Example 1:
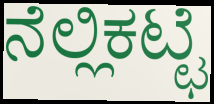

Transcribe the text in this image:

ನೆಲ್ಲಿಕಟ್ಟೆ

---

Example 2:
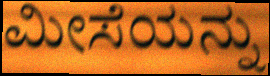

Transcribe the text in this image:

ಮೀಸೆಯನ್ನು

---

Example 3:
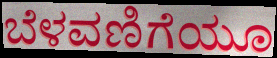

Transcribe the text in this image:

ಬೆಳವಣಿಗೆಯೂ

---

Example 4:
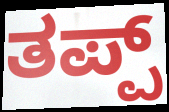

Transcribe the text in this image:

ತಪ್ಪ್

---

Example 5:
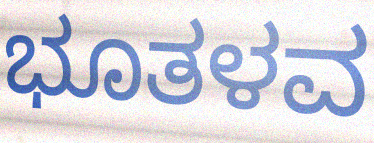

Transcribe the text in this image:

ಭೂತಳವ